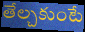
తేల్చకుంటే